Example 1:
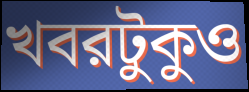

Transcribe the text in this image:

খবরটুকুও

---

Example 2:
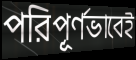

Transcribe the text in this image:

পরিপূর্ণভাবেই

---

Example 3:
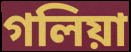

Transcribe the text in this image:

গলিয়া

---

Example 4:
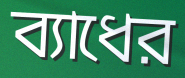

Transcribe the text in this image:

ব্যাধের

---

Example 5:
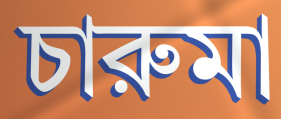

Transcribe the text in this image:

চারুমা